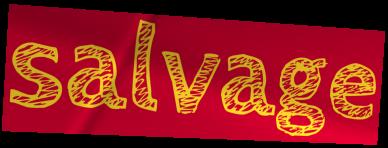
salvage